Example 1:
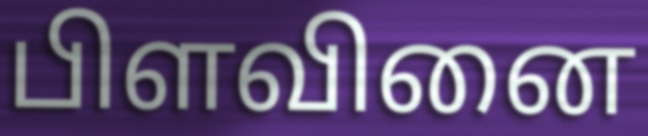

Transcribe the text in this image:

பிளவினை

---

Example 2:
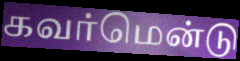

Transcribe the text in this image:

கவர்மென்டு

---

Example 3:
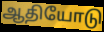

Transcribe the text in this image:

ஆதியோடு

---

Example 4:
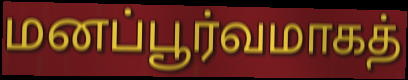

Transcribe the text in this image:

மனப்பூர்வமாகத்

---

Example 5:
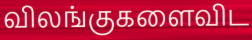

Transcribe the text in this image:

விலங்குகளைவிட